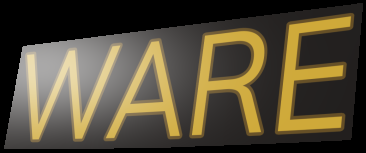
WARE